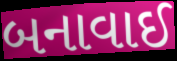
બનાવાઈ